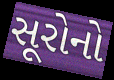
સૂરોનો